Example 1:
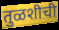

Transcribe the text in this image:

तुळशीची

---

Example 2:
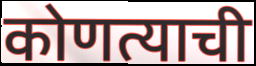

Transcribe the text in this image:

कोणत्याची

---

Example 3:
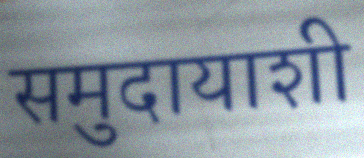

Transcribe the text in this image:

समुदायाशी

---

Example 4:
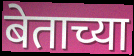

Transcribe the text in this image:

बेताच्या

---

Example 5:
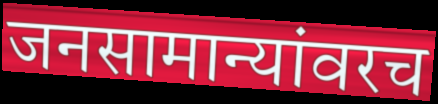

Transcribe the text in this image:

जनसामान्यांवरच